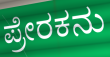
ಪ್ರೇರಕನು